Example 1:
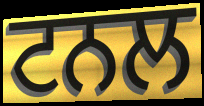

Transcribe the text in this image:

ਟਨਲ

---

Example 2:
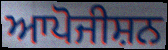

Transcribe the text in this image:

ਆਪੋਜੀਸ਼ਨ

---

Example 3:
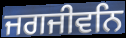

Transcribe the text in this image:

ਜਗਜੀਵਨਿ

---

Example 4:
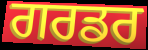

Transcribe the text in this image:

ਗਰਡਰ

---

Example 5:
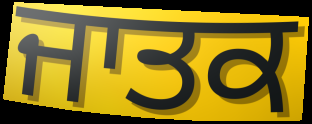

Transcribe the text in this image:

ਜਾਤਕ